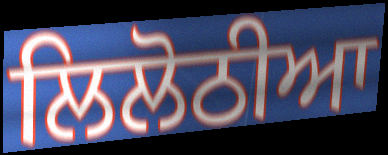
ਲਿਲੋਠੀਆ